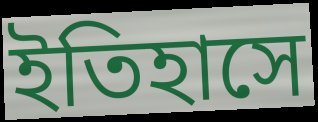
ইতিহাসে